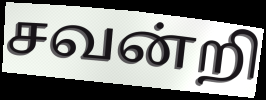
சவன்றி